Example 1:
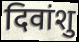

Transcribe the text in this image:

दिवांशु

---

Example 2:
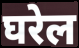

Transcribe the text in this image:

घरेल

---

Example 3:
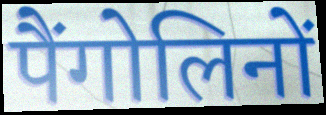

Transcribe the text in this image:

पैंगोलिनों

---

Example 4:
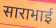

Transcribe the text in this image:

साराभाई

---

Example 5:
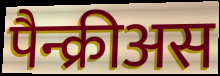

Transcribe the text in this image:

पैन्क्रीअस